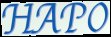
HAPO